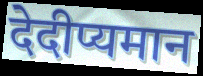
देदीप्यमान